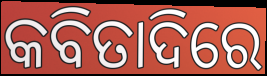
କବିତାଦିରେ